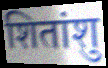
शितांशु